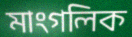
মাংগলিক